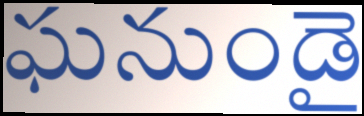
ఘనుండై